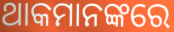
ଥାକମାନଙ୍କରେ